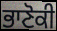
ਭਾਣੋਕੀ